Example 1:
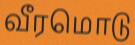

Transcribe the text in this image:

வீரமொடு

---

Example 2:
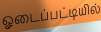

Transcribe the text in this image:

ஓடைப்பட்டியில்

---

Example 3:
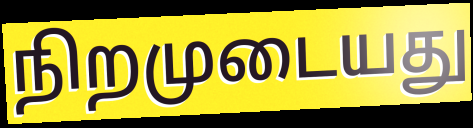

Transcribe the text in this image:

நிறமுடையது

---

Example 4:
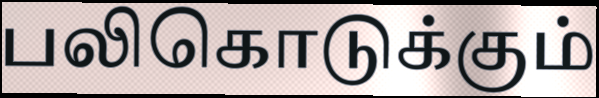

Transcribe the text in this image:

பலிகொடுக்கும்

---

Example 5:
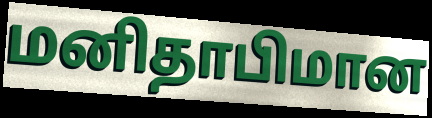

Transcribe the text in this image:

மனிதாபிமான